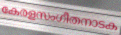
കേരളസംഗീതനാടക